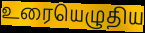
உரையெழுதிய